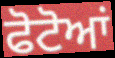
ਫੋਟੋਆਂ